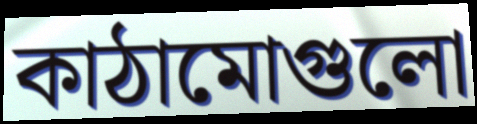
কাঠামোগুলো